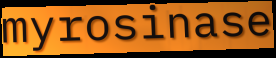
myrosinase